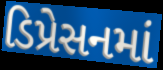
ડિપ્રેસનમાં